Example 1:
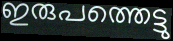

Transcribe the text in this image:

ഇരുപത്തെട്ടു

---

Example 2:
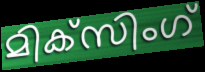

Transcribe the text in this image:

മിക്‌സിംഗ്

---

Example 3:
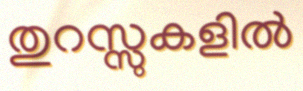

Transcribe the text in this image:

തുറസ്സുകളിൽ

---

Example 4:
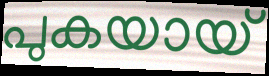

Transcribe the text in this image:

പുകയായ്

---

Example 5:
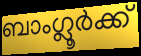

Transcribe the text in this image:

ബാംഗ്ലൂർക്ക്